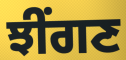
ਝੀਂਗਣ